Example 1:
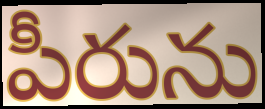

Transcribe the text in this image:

పీరును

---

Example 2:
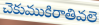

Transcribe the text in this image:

చెకుముకిరాతివలె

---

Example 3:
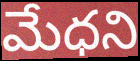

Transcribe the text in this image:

మేధని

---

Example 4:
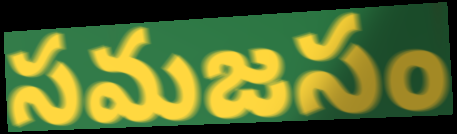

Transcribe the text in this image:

సమజసం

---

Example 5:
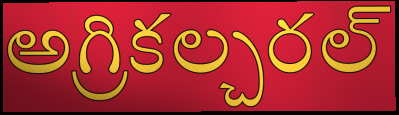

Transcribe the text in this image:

అగ్రికల్చరల్